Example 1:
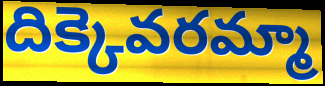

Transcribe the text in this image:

దిక్కెవరమ్మా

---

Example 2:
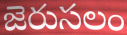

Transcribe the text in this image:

జెరుసలం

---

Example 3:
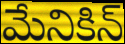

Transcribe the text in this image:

మేనికిన్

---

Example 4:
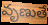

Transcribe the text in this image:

వృణుతే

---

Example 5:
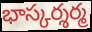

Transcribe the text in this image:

భాస్కర్శర్మ